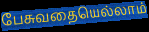
பேசுவதையெல்லாம்